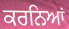
ਕਰਨਿਆਂ